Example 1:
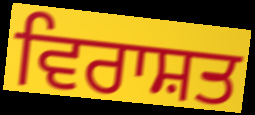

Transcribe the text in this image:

ਵਿਰਾਸ਼ਤ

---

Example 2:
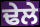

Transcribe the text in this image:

ਢੇਲੇ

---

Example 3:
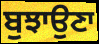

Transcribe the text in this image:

ਬੁਝਾਉਣਾ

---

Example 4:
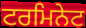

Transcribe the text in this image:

ਟਰਮਿਨੇਟ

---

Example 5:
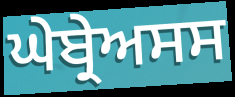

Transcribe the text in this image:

ਘੇਬ੍ਰੇਅਸਸ